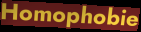
Homophobie